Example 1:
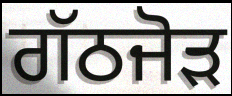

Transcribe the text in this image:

ਗੱਠਜੋੜ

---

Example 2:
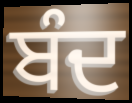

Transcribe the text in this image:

ਬੰਦ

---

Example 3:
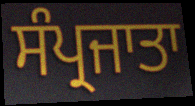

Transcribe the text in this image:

ਸੰਪ੍ਰਜਾਤਾ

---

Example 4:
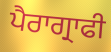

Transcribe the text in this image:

ਪੈਰਾਗ੍ਰਾਫੀ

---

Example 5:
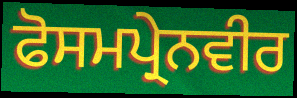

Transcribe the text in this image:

ਫੋਸਮਪ੍ਰੇਨਵੀਰ